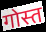
गोस्त